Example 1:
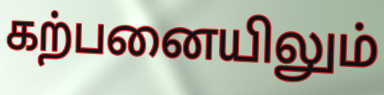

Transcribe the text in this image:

கற்பனையிலும்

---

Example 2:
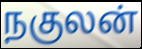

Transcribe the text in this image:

நகுலன்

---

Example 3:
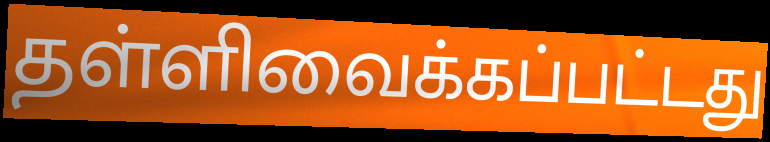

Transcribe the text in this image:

தள்ளிவைக்கப்பட்டது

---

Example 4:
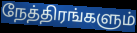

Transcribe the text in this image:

நேத்திரங்களும்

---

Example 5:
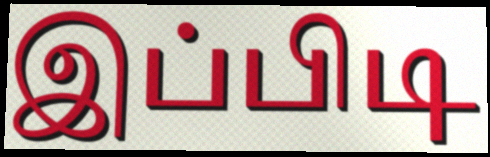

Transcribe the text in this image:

இப்பிடி